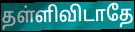
தள்ளிவிடாதே